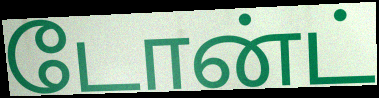
டோன்ட்